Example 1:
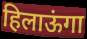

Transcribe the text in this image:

हिलाऊंगा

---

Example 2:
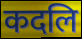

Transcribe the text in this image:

कदलि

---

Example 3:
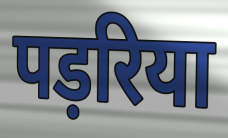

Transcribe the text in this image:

पड़रिया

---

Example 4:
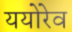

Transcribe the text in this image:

ययोरेव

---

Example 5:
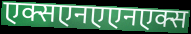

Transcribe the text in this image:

एक्सएनएएनएक्स